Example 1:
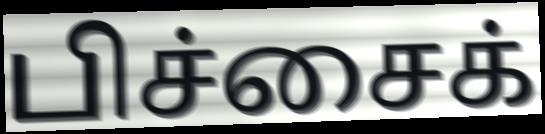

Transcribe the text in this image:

பிச்சைக்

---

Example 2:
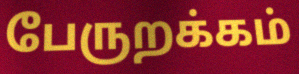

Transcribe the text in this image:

பேருறக்கம்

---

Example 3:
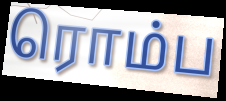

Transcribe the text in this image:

ரொம்ப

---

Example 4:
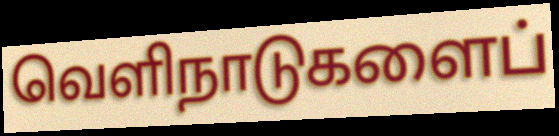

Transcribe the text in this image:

வெளிநாடுகளைப்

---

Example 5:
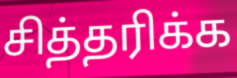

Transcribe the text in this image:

சித்தரிக்க